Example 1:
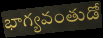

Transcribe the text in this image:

భాగ్యవంతుడో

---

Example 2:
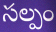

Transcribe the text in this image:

సల్పం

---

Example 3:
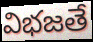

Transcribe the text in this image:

విభజతే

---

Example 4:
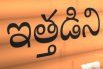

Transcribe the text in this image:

ఇత్తడిని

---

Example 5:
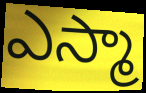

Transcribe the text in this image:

ఎస్మా